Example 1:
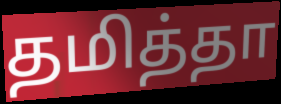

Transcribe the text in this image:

தமித்தா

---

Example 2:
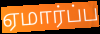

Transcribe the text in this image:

ஏமார்ப்ப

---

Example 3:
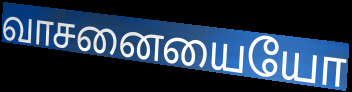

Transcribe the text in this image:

வாசனையையோ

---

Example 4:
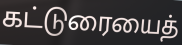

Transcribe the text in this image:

கட்டுரையைத்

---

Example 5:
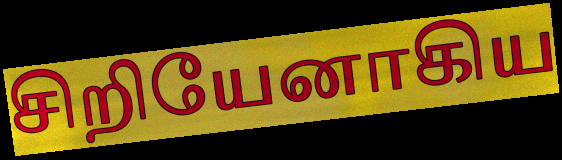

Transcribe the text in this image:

சிறியேனாகிய